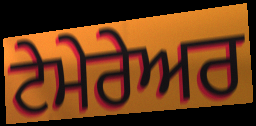
ਟੇਮੇਰੇਅਰ